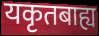
यकृतबाह्य